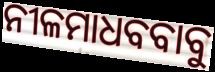
ନୀଳମାଧବବାବୁ